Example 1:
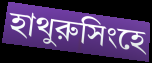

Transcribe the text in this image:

হাথুরুসিংহে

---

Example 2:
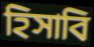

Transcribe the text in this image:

হিসাবি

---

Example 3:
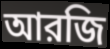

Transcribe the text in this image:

আরজি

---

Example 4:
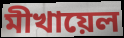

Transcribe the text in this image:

মীখায়েল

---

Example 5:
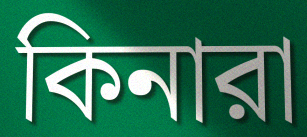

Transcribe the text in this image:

কিনারা